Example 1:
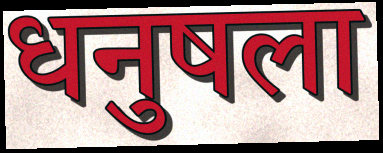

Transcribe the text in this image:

धनुषला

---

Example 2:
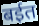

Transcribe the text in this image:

बईत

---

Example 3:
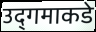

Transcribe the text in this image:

उद्‌गमाकडे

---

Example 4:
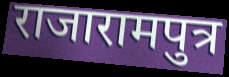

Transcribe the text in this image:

राजारामपुत्र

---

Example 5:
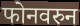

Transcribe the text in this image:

फोनवरुन